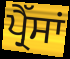
ਪ੍ਰੈੱਸਾਂ